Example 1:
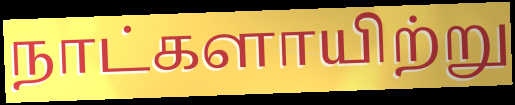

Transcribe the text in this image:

நாட்களாயிற்று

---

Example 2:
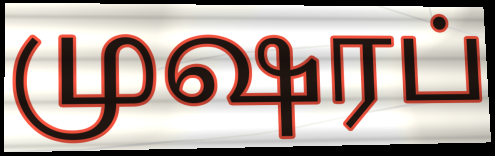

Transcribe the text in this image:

முஷரப்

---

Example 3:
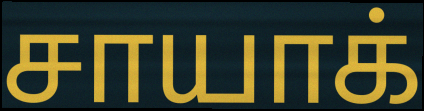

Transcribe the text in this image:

சாயாக்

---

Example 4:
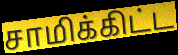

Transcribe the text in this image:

சாமிக்கிட்ட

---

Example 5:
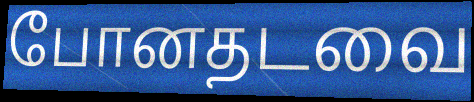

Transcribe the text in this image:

போனதடவை